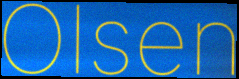
Olsen